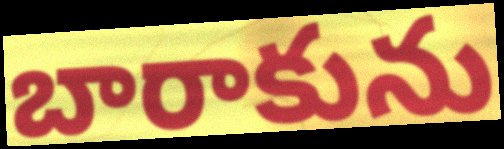
బారాకును